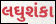
લઘુશંકા